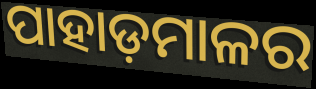
ପାହାଡ଼ମାଳର